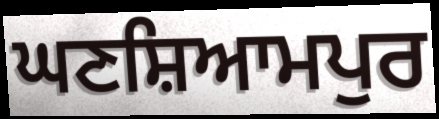
ਘਣਸ਼ਿਆਮਪੁਰ